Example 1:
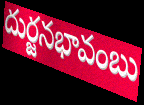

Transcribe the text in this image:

దుర్జనభావంబు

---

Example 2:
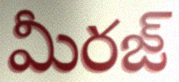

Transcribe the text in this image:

మీరజ్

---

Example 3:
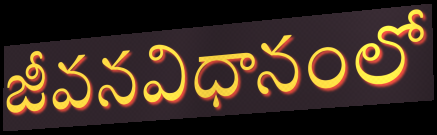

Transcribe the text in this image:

జీవనవిధానంలో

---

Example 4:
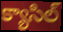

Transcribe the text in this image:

క్యాసిల్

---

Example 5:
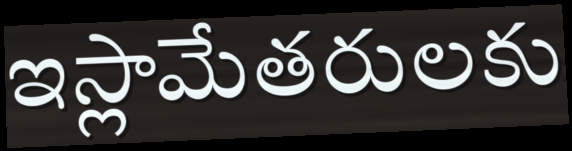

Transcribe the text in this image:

ఇస్లామేతరులకు